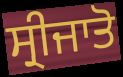
ਸ੍ਰੀਜਾਤੋ